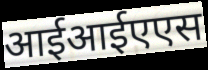
आईआईएएस